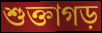
শুক্তাগড়